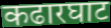
कढारघाट